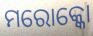
ମରୋକ୍କୋ